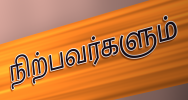
நிற்பவர்களும்